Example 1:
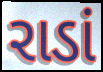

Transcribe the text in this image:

રાડાં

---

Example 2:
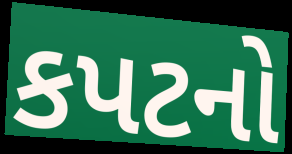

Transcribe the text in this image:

કપટનો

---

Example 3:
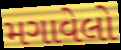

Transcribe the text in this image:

મગાવેલો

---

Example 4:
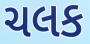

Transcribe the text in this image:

ચલક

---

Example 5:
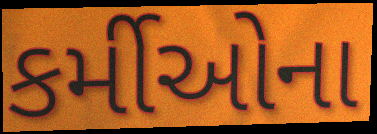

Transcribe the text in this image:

કર્મીઓના